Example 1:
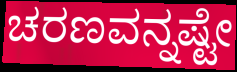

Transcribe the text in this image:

ಚರಣವನ್ನಷ್ಟೇ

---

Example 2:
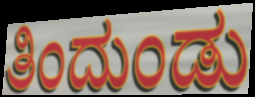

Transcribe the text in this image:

ತಿಂದುಂಡು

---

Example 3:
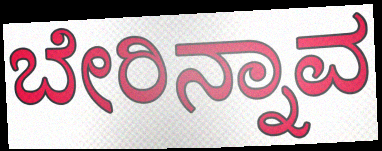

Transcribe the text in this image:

ಬೇರಿನ್ನಾವ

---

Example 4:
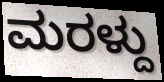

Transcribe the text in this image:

ಮರಳ್ದು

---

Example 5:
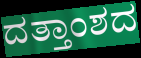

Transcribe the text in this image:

ದತ್ತಾಂಶದ